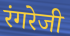
रंगरेजी